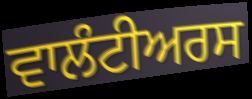
ਵਾਲੰਟੀਅਰਸ